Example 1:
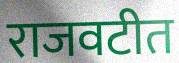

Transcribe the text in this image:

राजवटीत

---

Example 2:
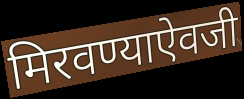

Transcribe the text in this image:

मिरवण्याऐवजी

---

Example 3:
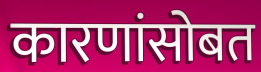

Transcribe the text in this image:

कारणांसोबत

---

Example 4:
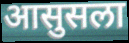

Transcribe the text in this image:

आसुसला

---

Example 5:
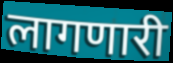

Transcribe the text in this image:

लागणारी